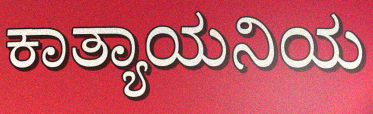
ಕಾತ್ಯಾಯನಿಯ